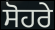
ਸੋਹਰੇ